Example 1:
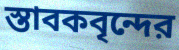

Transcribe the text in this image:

স্তাবকবৃন্দের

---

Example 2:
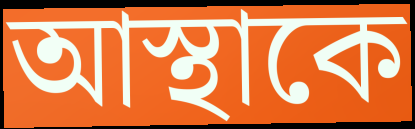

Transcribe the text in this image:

আস্থাকে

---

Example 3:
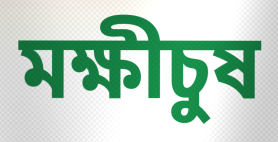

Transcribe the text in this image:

মক্ষীচুষ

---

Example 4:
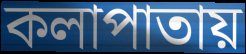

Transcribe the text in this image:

কলাপাতায়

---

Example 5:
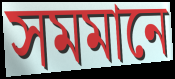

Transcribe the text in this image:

সমমানে